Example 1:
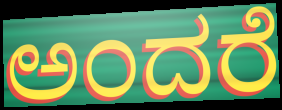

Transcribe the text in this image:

ಅಂದರೆ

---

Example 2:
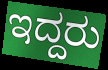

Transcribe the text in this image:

ಇದ್ದರು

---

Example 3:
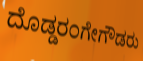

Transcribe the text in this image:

ದೊಡ್ಡರಂಗೇಗೌಡರು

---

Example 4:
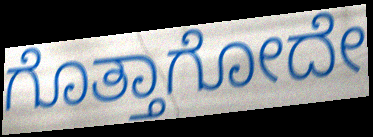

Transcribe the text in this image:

ಗೊತ್ತಾಗೋದೇ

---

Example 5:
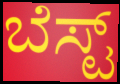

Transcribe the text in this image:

ಬೆಸ್ಟ್